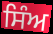
ਸਿੰਅ